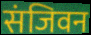
संजिवन